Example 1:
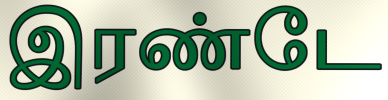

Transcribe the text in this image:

இரண்டே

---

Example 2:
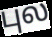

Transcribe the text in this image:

புல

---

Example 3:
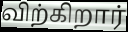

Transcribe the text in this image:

விற்கிறார்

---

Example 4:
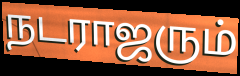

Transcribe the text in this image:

நடராஜரும்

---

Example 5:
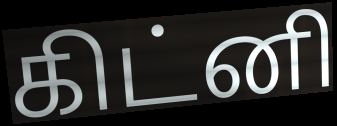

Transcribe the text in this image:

கிட்னி